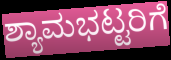
ಶ್ಯಾಮಭಟ್ಟರಿಗೆ